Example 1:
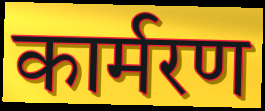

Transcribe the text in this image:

कार्मरण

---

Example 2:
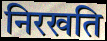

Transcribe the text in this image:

निरखति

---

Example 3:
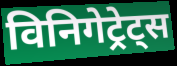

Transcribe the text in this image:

विनिगेट्रेट्स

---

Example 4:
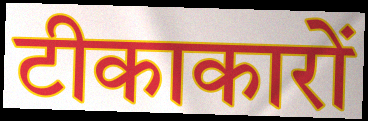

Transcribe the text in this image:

टीकाकारों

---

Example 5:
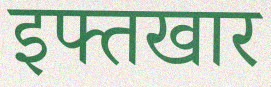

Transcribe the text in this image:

इफ्तखार